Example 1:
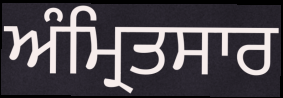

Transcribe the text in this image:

ਅੰਮ੍ਰਿਤਸਾਰ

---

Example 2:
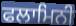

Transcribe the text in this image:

ਫਲਾਮਿਨੀ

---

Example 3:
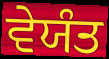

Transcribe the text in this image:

ਵੇਯੰਤ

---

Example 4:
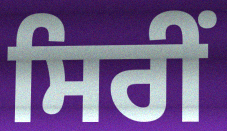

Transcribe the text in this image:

ਸਿਰੀਂ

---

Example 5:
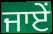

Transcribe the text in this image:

ਜਾਏਂ